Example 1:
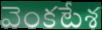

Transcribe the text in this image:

వెంకటేశ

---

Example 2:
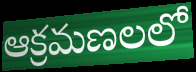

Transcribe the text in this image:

ఆక్రమణలలో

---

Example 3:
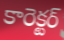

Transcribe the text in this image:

కారెక్టర్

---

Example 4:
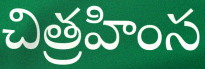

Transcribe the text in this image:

చిత్రహింస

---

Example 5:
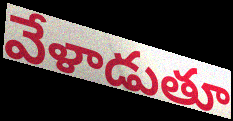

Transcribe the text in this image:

వేళాడుతూ